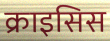
क्राइसिस